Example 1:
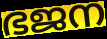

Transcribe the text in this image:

ഭജന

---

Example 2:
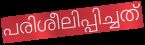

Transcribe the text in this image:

പരിശീലിപ്പിച്ചത്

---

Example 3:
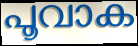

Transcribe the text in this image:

പൂവാക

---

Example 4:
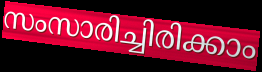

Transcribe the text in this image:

സംസാരിച്ചിരിക്കാം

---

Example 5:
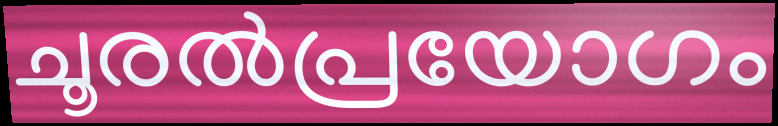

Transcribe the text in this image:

ചൂരൽപ്രയോഗം